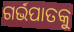
ଗର୍ଭପାତକୁ